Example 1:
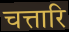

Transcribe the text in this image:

चत्तारि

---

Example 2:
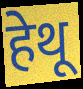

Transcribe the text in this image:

हेथू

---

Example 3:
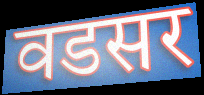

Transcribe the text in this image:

वडसर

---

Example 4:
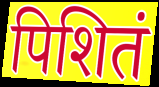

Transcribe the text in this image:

पिशितं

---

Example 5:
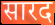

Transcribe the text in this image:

सारद